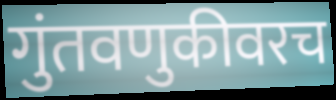
गुंतवणुकीवरच